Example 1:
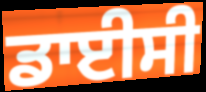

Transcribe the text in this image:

ਡਾਈਸੀ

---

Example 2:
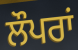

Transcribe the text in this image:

ਲੌਪਰਾਂ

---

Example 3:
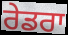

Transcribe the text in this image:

ਰੇਡਰਾ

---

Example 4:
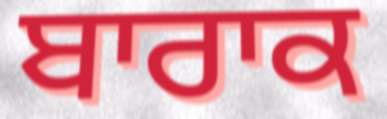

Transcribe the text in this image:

ਬਾਰਾਕ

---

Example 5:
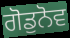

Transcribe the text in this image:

ਗੋਡੁਨੋਵ